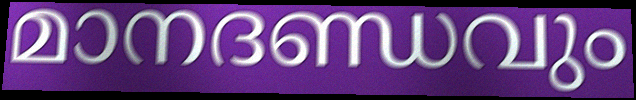
മാനദണ്ഡവും